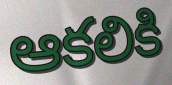
ఆకలికి